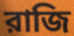
রাজি